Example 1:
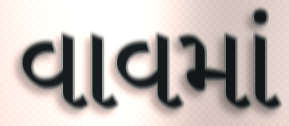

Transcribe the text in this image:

વાવમાં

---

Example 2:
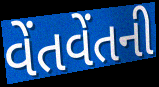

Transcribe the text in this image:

વેંતવેંતની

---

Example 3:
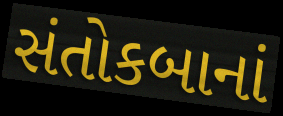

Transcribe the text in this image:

સંતોકબાનાં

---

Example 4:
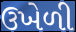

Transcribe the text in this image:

ઉખેળી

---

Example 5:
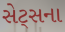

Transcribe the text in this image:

સેટ્સના